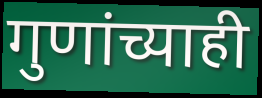
गुणांच्याही